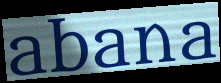
abana